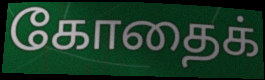
கோதைக்